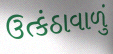
ઉત્કંઠાવાળું